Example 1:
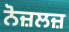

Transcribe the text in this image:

ਨੋਜ਼ਲਜ਼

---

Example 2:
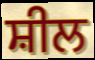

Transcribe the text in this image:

ਸ਼ੀਲ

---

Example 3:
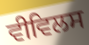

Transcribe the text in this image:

ਵੀਵਿਲਸ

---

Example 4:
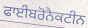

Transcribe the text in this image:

ਫਾਈਬਰੋਨੈਕਟੀਨ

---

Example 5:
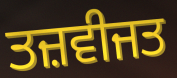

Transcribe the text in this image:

ਤਜ਼ਵੀਜਤ